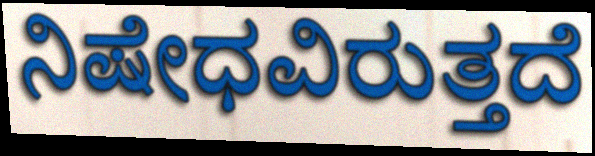
ನಿಷೇಧವಿರುತ್ತದೆ